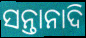
ସନ୍ତାନାଦି